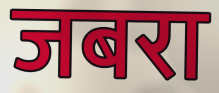
जबरा